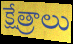
క్షేత్రాలు